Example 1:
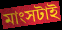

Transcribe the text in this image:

মাংসটাই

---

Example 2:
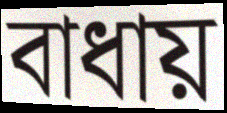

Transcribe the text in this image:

বাধায়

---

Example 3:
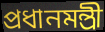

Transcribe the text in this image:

প্রধানমন্ত্রী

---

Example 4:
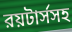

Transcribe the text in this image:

রয়টার্সসহ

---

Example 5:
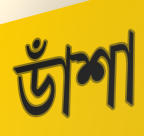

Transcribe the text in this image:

ডাঁশা